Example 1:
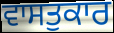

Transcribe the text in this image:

ਵਾਸਤੁਕਾਰ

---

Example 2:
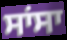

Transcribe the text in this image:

ਸਾਂਸਾ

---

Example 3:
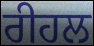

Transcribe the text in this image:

ਰੀਹਲ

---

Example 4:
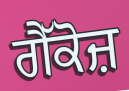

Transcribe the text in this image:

ਗੈੱਕੋਜ਼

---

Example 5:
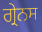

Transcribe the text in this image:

ਗ੍ਰੇਨਸ